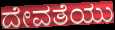
ದೇವತೆಯು